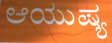
ಆಯುಷ್ಯ